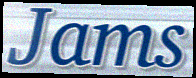
Jams